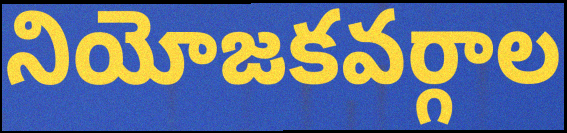
నియోజకవర్గాల